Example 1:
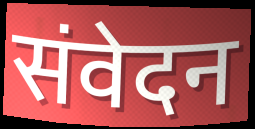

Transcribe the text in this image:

संवेदन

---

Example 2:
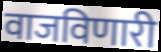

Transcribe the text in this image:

वाजविणारी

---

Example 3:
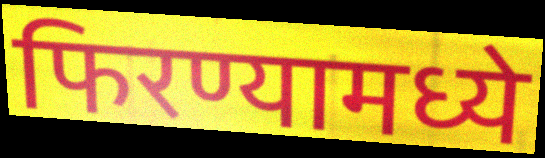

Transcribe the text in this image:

फिरण्यामध्ये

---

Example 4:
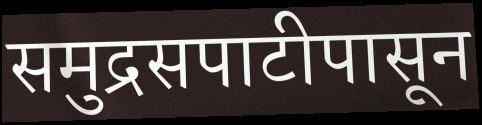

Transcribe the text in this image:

समुद्रसपाटीपासून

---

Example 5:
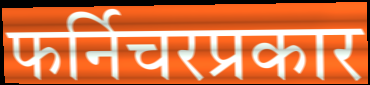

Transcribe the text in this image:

फर्निचरप्रकार